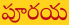
పూరయ